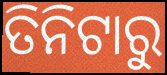
ତିନିଟାରୁ